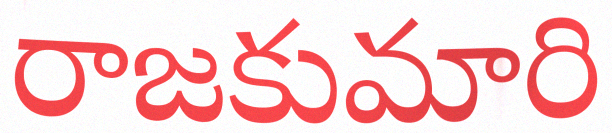
రాజకుమారి